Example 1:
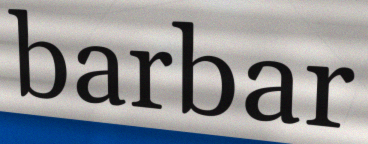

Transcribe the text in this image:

barbar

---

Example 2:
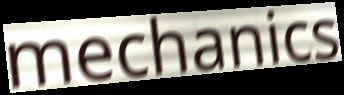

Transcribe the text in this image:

mechanics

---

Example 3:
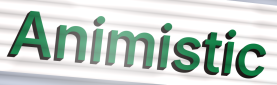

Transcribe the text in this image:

Animistic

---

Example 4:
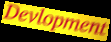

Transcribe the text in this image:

Devlopment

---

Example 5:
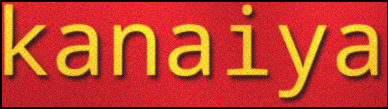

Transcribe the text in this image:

kanaiya